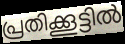
പ്രതിക്കൂട്ടിൽ